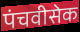
पंचवीसेक